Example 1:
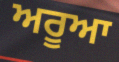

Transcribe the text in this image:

ਅਰੂਆ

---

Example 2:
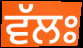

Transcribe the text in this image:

ਵੱਲਃ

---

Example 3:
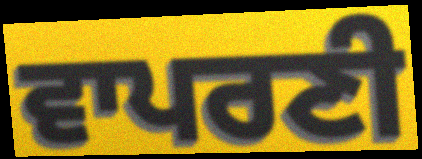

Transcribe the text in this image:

ਵਾਪਰਣੀ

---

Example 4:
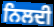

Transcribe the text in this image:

ਨਿਲਦੀ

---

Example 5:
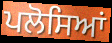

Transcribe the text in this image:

ਪਲੋਸਿਆਂ